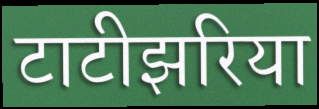
टाटीझरिया